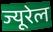
ज्यूरेल